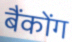
बैंकोंग